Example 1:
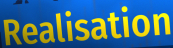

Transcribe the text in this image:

Realisation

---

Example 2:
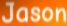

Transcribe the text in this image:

Jason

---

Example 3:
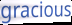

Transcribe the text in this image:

gracious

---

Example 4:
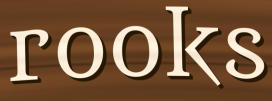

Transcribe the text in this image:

rooks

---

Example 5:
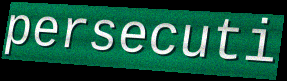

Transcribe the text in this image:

persecuti